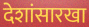
देशांसारखा